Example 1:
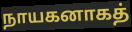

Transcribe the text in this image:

நாயகனாகத்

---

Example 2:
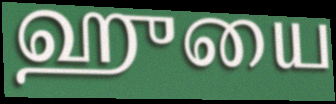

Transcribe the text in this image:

ஹுயை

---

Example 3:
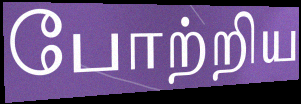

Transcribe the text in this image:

போற்றிய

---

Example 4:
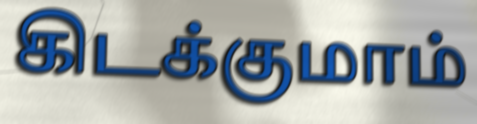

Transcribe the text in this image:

கிடக்குமாம்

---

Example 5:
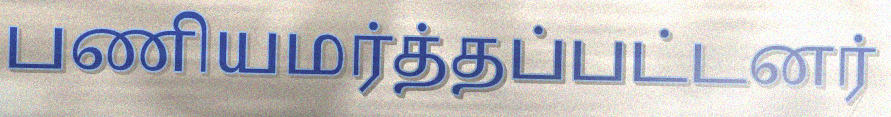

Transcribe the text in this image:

பணியமர்த்தப்பட்டனர்